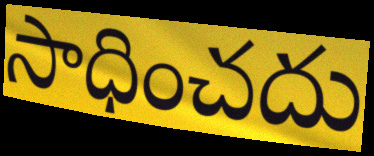
సాధించదు